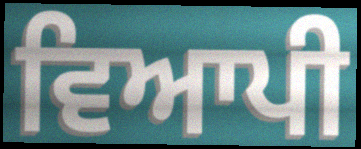
ਵਿਆਪੀ